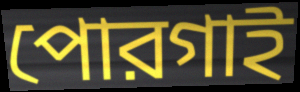
পোরগাই